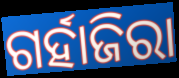
ଗର୍ହାଜିରା